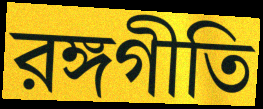
রঙ্গগীতি